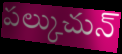
పల్కుచున్